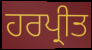
ਹਰਪ੍ਰੀਤ